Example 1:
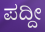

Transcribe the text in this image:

ಪದ್ದೀ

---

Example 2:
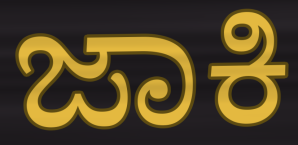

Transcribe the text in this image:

ಜಾಕಿ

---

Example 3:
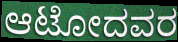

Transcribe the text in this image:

ಆಟೋದವರ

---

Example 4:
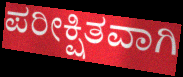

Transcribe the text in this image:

ಪರೀಕ್ಷಿತವಾಗಿ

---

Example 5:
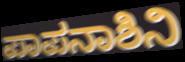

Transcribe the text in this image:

ಪಾಪನಾಶಿನಿ